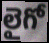
లైగో